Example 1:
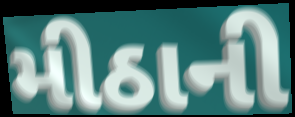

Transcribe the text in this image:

મીઠાની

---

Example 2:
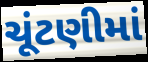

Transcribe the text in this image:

ચૂંટણીમાં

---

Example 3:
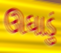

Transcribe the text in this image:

ઊઘાડું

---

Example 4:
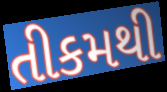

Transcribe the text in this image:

તીકમથી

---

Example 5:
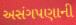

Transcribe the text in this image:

અસંગપણાની